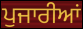
ਪੁਜਾਰੀਆਂ